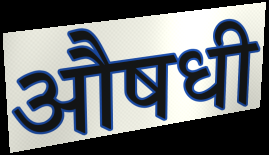
औषधी